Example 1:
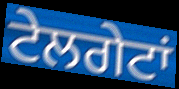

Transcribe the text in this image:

ਟੇਲਗੇਟਾਂ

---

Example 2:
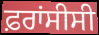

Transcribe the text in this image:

ਫ਼ਰਾਂਸੀਸੀ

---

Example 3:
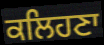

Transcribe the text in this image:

ਕਲਿਹਣਾ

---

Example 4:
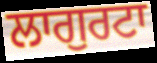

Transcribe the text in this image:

ਲਾਗੁਰਟਾ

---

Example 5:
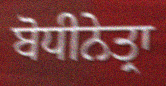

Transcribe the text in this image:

ਬੋਧੀਨੇਤ੍ਰਾ